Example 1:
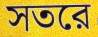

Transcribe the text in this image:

সতরে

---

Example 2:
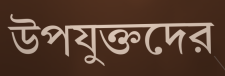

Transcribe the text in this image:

উপযুক্তদের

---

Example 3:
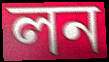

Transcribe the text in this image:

লন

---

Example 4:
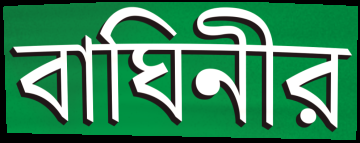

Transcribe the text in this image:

বাঘিনীর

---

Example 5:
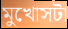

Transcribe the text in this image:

মুখোসটা